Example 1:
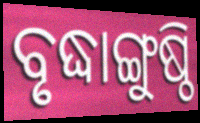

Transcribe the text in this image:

ବୃଦ୍ଧାଙ୍ଗୁଷ୍ଠି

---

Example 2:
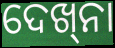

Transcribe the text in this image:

ଦେଖ୍‌ନା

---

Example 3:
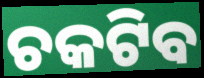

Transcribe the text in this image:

ଚକଟିବ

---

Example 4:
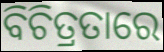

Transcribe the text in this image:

ବିଚିତ୍ରତାରେ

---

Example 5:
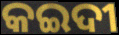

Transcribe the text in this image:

କଇଦୀ